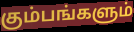
கும்பங்களும்